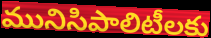
మునిసిపాలిటీలకు